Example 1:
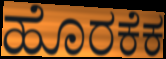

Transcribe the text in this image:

ಹೊರಕೆಕ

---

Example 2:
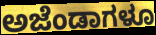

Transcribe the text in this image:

ಅಜೆಂಡಾಗಳೂ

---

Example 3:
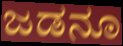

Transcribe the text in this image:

ಜಡನೂ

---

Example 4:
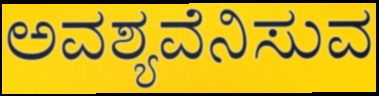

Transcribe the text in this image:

ಅವಶ್ಯವೆನಿಸುವ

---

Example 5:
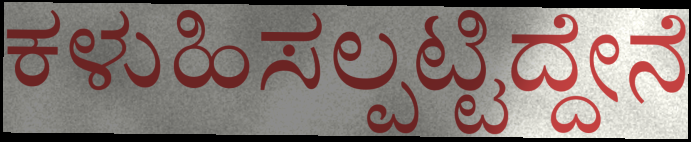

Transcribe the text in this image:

ಕಳುಹಿಸಲ್ಪಟ್ಟಿದ್ದೇನೆ